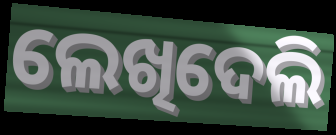
ଲେଖିଦେଲି